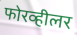
फोरव्हीलर